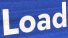
Load